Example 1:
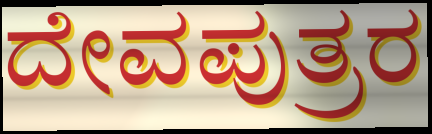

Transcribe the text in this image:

ದೇವಪುತ್ರರ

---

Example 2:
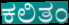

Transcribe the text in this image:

ಕಲಿತಂ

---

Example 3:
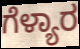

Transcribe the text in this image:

ಗೆಳ್ಯಾರ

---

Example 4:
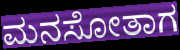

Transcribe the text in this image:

ಮನಸೋತಾಗ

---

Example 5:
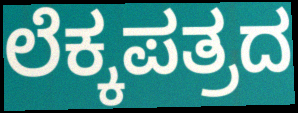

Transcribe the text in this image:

ಲೆಕ್ಕಪತ್ರದ